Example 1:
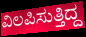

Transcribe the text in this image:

ವಿಲಪಿಸುತ್ತಿದ್ದ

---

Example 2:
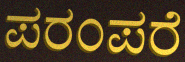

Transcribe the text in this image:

ಪರಂಪರೆ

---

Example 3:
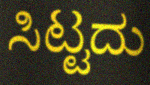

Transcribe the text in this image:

ಸಿಟ್ಟದು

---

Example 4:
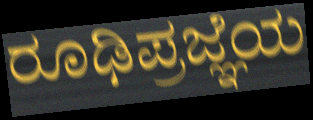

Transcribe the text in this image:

ರೂಢಿಪ್ರಜ್ಞೆಯ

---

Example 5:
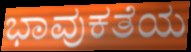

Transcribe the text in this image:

ಭಾವುಕತೆಯ